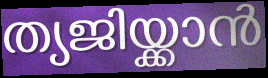
ത്യജിയ്ക്കാൻ